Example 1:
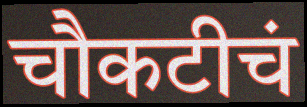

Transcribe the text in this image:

चौकटीचं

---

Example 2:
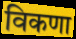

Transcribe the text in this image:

विकणा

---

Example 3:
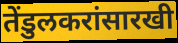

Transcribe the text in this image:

तेंडुलकरांसारखी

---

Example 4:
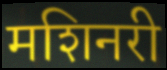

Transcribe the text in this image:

मशिनरी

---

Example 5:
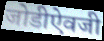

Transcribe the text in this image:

जोडीऐवजी